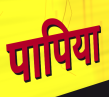
पापिया